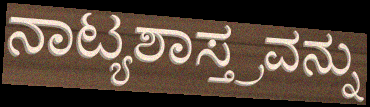
ನಾಟ್ಯಶಾಸ್ತ್ರವನ್ನು